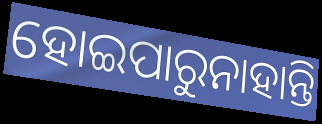
ହୋଇପାରୁନାହାନ୍ତି